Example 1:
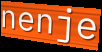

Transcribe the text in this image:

nenje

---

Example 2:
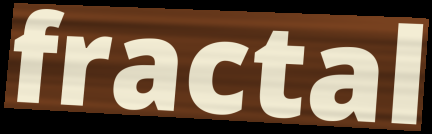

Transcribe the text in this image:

fractal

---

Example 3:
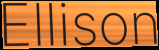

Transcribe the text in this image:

Ellison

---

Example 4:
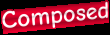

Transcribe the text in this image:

Composed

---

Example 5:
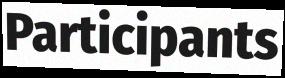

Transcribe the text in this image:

Participants